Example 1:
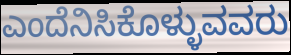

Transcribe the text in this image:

ಎಂದೆನಿಸಿಕೊಳ್ಳುವವರು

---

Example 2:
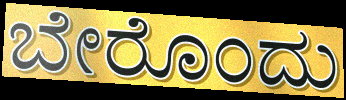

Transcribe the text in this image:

ಬೇರೊಂದು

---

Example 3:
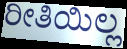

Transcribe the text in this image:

ರೀತಿಯಿಲ್ಲ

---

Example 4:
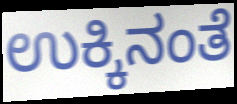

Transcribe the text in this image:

ಉಕ್ಕಿನಂತೆ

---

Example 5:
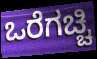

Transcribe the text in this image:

ಒರೆಗಚ್ಚಿ